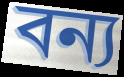
বন্য